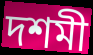
দশমী